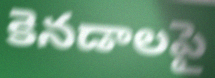
కెనడాలపై